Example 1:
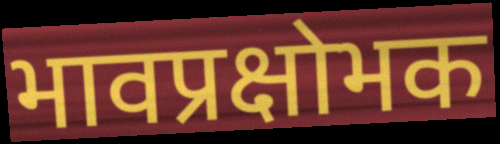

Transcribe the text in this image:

भावप्रक्षोभक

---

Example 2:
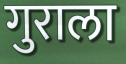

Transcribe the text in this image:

गुराला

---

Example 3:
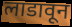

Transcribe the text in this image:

लाडावून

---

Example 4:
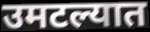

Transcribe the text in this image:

उमटल्यात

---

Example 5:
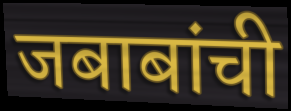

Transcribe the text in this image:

जबाबांची